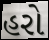
હરો